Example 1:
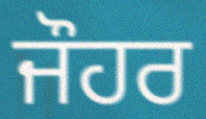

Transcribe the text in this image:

ਜੌਹਰ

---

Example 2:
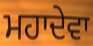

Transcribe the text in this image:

ਮਹਾਦੇਵਾ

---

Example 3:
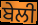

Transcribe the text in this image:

ਬੇਲੀ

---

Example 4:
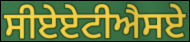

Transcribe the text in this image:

ਸੀਏਏਟੀਐਸਏ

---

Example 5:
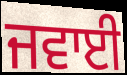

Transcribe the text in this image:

ਜਵਾਈ